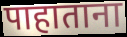
पाहाताना